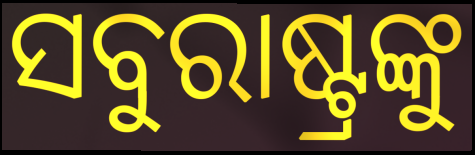
ସବୁରାଷ୍ଟ୍ରଙ୍କୁ